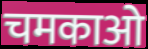
चमकाओ